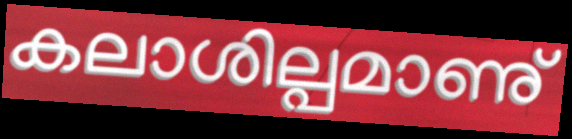
കലാശില്പമാണു്